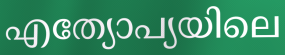
എത്യോപ്യയിലെ